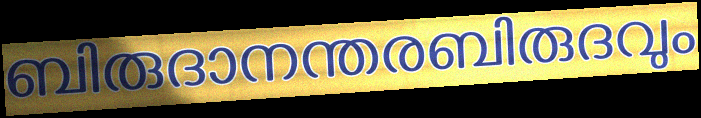
ബിരുദാനന്തരബിരുദവും